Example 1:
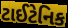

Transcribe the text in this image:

ટાઈટેનિક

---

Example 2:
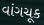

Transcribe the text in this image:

વાંગચૂક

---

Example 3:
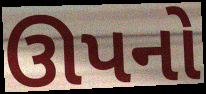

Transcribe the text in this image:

ઊપનો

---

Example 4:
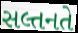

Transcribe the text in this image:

સલ્તનતે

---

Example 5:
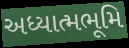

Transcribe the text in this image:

અધ્યાત્મભૂમિ